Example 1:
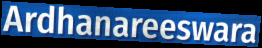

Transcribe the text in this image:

Ardhanareeswara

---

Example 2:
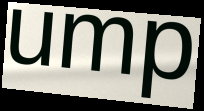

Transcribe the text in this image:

ump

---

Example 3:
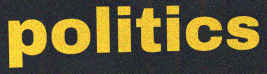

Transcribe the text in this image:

politics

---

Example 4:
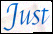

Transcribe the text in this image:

Just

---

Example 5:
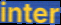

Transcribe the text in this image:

inter